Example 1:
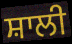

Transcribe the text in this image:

ਸ਼ਾਲੀ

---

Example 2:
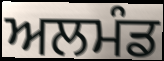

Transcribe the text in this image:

ਅਲਮੰਡ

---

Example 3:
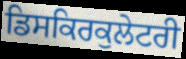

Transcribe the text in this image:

ਡਿਸਕਿਰਕੁਲੇਟਰੀ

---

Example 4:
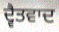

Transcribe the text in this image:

ਦ੍ਵੈਤਵਾਦ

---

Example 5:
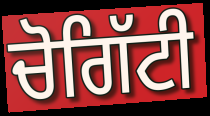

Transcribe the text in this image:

ਚੋਗਿੱਟੀ